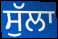
ਸੁੱਲਾ